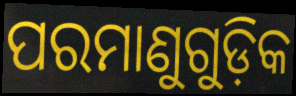
ପରମାଣୁଗୁଡ଼ିକ